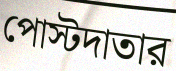
পোস্টদাতার